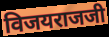
विजयराजजी